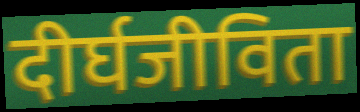
दीर्घजीविता